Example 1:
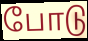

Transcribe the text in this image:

போடு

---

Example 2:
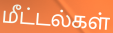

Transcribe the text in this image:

மீட்டல்கள்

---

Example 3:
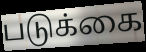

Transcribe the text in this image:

படுக்கை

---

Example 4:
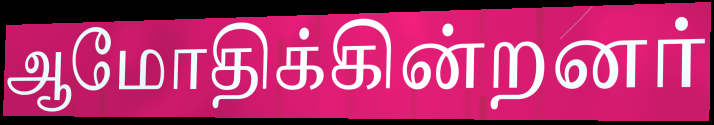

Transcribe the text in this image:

ஆமோதிக்கின்றனர்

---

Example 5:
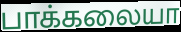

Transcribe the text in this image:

பாக்கலையா